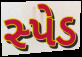
સ્પેડ